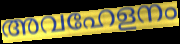
അവഹേളനം